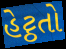
હેટ્ઠતો